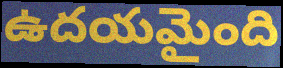
ఉదయమైంది